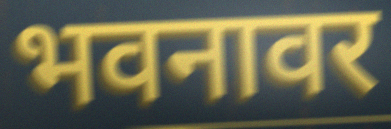
भवनावर